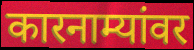
कारनाम्यांवर